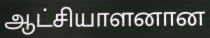
ஆட்சியாளனான